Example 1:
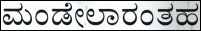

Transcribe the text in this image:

ಮಂಡೇಲಾರಂತಹ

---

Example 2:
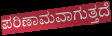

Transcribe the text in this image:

ಪರಿಣಾಮವಾಗುತ್ತದೆ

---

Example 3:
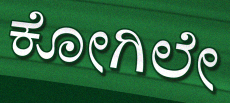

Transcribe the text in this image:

ಕೋಗಿಲೇ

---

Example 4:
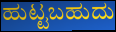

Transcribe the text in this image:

ಹುಟ್ಟಬಹುದು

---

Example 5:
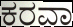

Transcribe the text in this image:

ಕರವಾ